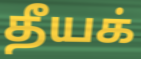
தீயக்